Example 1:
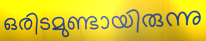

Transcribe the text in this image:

ഒരിടമുണ്ടായിരുന്നു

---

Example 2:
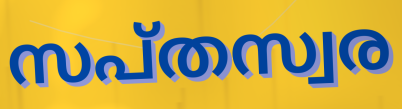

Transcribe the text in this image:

സപ്തസ്വര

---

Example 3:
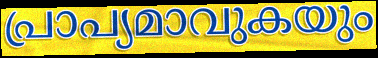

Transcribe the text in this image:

പ്രാപ്യമാവുകയും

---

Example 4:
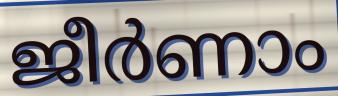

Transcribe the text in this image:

ജീർണാം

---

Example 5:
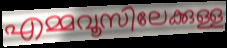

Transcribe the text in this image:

എമ്മവൂസിലേക്കുള്ള